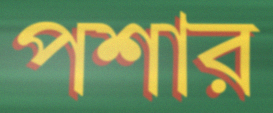
পশার